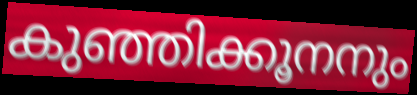
കുഞ്ഞിക്കൂനനും